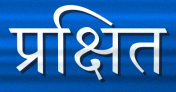
प्रक्षित